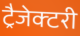
ट्रैजेक्‍टरी